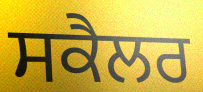
ਸਕੈਲਰ